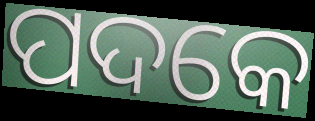
ପଦକେ